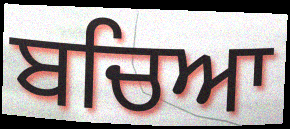
ਬਚਿਆ